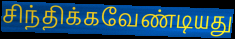
சிந்திக்கவேண்டியது